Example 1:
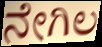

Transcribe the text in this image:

ನೇಗಿಲ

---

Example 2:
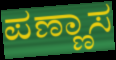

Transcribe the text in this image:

ಪಣ್ಣಾಸ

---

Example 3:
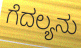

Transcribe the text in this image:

ಗೆದಲ್ಯನು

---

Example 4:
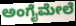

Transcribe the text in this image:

ಅಂಗೈಮೇಲೆ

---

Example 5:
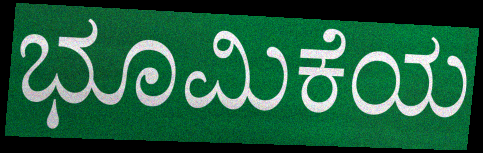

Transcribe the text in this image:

ಭೂಮಿಕೆಯ